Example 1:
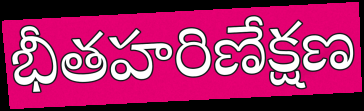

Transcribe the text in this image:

భీతహరిణేక్షణ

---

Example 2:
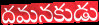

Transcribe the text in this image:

దమనకుడు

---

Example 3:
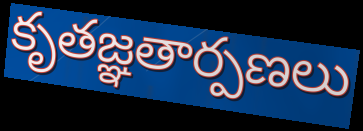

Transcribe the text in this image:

కృతజ్ఞతార్పణలు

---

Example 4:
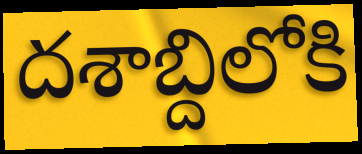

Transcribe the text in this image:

దశాబ్దిలోకి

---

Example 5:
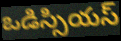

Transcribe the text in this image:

ఒడిస్సియస్